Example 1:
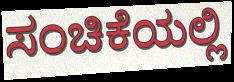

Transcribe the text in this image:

ಸಂಚಿಕೆಯಲ್ಲಿ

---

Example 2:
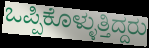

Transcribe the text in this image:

ಒಪ್ಪಿಕೊಳ್ಳುತ್ತಿದ್ದರು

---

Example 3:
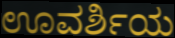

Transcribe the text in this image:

ಊವರ್ಶಿಯ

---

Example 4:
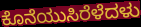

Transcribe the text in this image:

ಕೊನೆಯುಸಿರೆಳೆದಳು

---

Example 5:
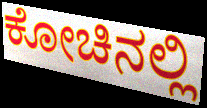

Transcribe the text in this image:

ಕೋಚಿನಲ್ಲಿ